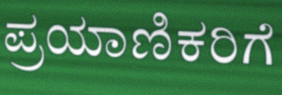
ಪ್ರಯಾಣಿಕರಿಗೆ